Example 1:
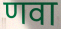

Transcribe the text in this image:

णवा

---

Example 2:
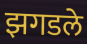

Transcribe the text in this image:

झगडले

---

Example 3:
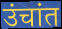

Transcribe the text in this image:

उंचांत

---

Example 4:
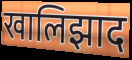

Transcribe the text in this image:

खालिझाद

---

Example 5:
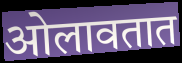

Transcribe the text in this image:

ओलावतात